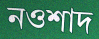
নওশাদ